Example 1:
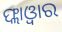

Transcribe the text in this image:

ଫ୍ଲାଓ୍ବାର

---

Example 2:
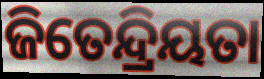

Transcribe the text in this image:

ଜିତେନ୍ଦ୍ରିୟତା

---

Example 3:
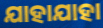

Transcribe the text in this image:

ଯାହାଯାହା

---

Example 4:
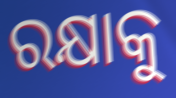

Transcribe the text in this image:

ରକ୍ଷାକୁ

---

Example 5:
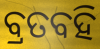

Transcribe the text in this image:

ବ୍ରତବହି